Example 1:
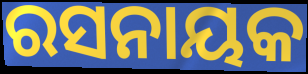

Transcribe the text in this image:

ରସନାୟକ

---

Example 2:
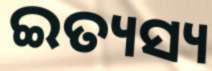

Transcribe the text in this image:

ଇତ୍ୟସ୍ୟ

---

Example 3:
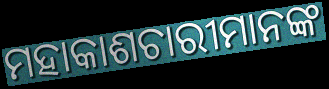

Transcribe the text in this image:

ମହାକାଶଚାରୀମାନଙ୍କ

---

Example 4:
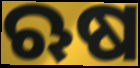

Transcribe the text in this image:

ଋଷ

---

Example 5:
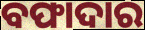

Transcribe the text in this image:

ବଫାଦାର